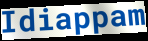
Idiappam